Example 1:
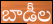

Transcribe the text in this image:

బాడీల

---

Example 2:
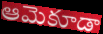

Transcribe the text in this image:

ఆమెకూడా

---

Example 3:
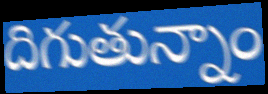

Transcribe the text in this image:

దిగుతున్నాం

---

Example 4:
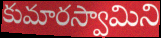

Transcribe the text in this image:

కుమారస్వామిని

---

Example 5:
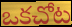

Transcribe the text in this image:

ఒకచోట